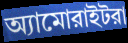
অ্যামোরাইটরা